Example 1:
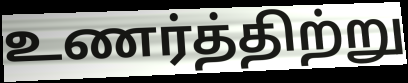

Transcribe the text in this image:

உணர்த்திற்று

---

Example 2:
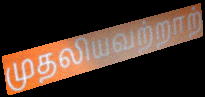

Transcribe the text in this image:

முதலியவற்றாற்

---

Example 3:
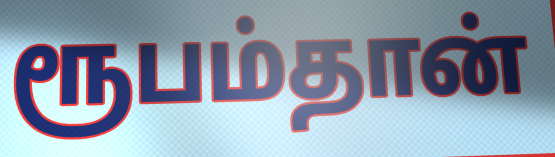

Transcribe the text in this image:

ரூபம்தான்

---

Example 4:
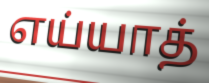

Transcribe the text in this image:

எய்யாத்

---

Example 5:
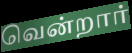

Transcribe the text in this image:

வென்றார்